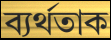
ব্যৰ্থতাক